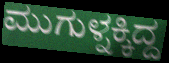
ಮುಗುಳ್ನಕ್ಕಿದ್ದ